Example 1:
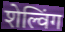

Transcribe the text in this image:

शेल्विंग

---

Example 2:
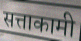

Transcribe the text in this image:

सत्ताकामी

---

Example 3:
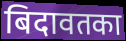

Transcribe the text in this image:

बिदावतका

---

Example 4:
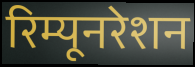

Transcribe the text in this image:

रिम्यूनरेशन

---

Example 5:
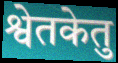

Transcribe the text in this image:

श्वेतकेतु